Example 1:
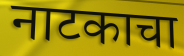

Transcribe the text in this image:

नाटकाचा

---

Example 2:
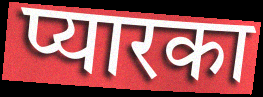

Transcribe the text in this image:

प्यारका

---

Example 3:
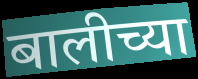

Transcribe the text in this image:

बालीच्या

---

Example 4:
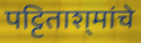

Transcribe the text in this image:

पट्टिताश्मांचे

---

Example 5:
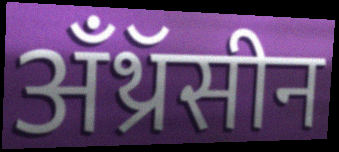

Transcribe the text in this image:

अँथ्रॅसीन